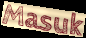
Masuk